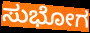
ಸುಭೋಗ